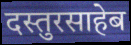
दस्तुरसाहेब